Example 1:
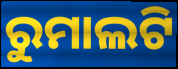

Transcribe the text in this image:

ରୁମାଲଟି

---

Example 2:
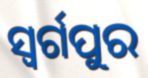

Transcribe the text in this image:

ସ୍ଵର୍ଗପୁର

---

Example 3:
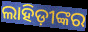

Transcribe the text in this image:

ଲାହିଡ଼ୀଙ୍କର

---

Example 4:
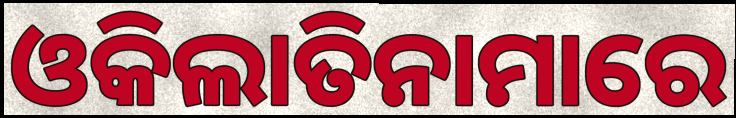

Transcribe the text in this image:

ଓକିଲାତିନାମାରେ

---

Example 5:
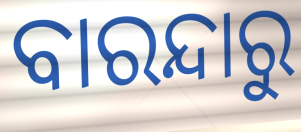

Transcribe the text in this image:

ବାରନ୍ଦାରୁ